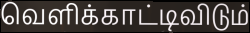
வெளிக்காட்டிவிடும்